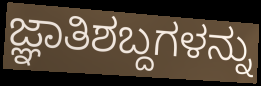
ಜ್ಞಾತಿಶಬ್ದಗಳನ್ನು